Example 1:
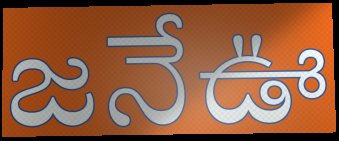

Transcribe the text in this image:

జనేఊ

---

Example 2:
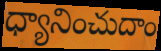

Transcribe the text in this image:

ధ్యానించుదాం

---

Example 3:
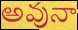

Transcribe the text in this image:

అవునా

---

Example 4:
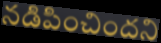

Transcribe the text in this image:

నడిపించిందని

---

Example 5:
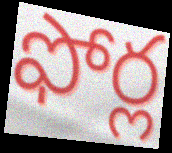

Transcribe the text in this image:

ఫోర్ల